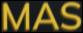
MAS